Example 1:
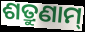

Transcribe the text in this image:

ଶତ୍ରୁଣାମ୍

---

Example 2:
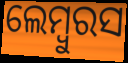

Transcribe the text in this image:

ଲେମ୍ବୁରସ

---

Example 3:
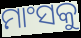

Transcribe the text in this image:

ମାଂସକୁ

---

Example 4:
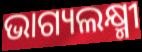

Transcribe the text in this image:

ଭାଗ୍ୟଲକ୍ଷ୍ମୀ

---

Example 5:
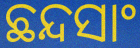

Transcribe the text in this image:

ଛନ୍ଦସାଂ